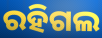
ରହିଗଲ